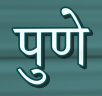
पुणे